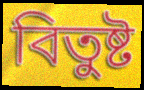
বিতুষ্ট